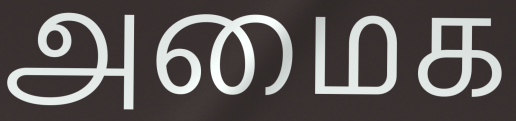
அமைக